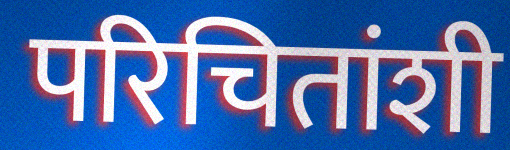
परिचितांशी